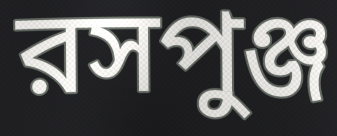
রসপুঞ্জ